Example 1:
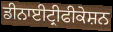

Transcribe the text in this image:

ਡੀਨਾਈਟ੍ਰੀਫੀਕੇਸ਼ਨ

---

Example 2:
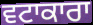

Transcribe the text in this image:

ਵਟਾਕਾਰਾ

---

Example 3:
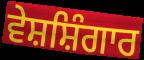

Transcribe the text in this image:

ਵੇਸ਼ਸ਼ਿੰਗਾਰ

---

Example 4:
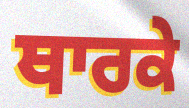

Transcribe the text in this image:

ਥਾਰਕੇ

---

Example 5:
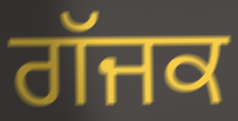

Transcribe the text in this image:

ਗੱਜਕ